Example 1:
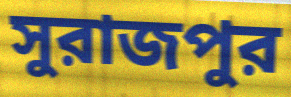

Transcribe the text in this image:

সুরাজপুর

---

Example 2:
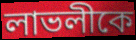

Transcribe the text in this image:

লাভলীকে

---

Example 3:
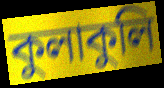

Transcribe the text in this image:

কুলাকুলি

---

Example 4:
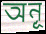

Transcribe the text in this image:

অনূ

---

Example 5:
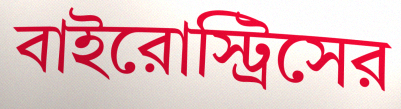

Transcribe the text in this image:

বাইরোস্ট্রিসের